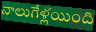
నాలుగేళ్లయింది